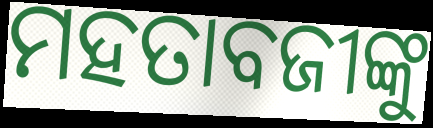
ମହତାବଜୀଙ୍କୁ